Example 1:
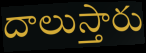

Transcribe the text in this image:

దాలుస్తారు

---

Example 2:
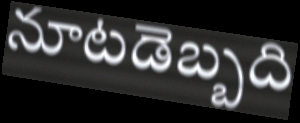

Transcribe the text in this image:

నూటడెబ్బది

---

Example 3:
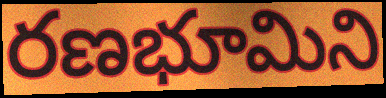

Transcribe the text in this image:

రణభూమిని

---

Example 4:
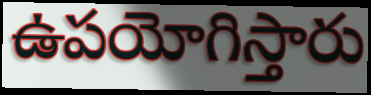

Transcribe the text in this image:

ఉపయోగిస్తారు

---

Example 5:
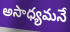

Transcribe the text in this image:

అసాధ్యమనే